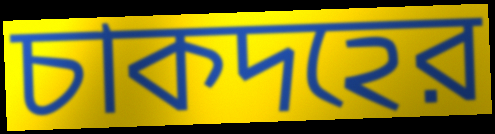
চাকদহের